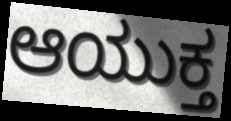
ಆಯುಕ್ತ